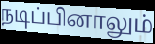
நடிப்பினாலும்